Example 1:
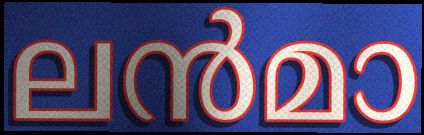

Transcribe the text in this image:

ലൻമാ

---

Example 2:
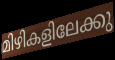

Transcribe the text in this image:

മിഴികളിലേക്കു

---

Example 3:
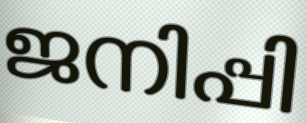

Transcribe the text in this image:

ജനിപ്പി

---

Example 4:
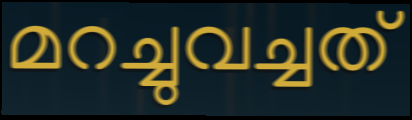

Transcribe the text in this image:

മറച്ചുവച്ചത്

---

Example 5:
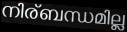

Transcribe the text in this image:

നിര്ബന്ധമില്ല